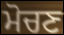
ਮੋਚਣ